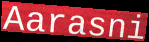
Aarasni